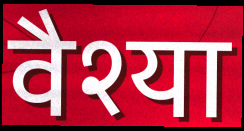
वैश्या